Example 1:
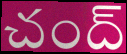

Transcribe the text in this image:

చంద్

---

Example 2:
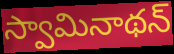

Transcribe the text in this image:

స్వామినాథన్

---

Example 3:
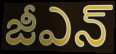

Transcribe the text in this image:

జీఎన్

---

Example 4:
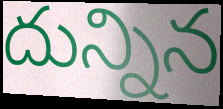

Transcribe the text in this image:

దున్నిన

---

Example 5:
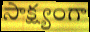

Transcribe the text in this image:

సాక్ష్యంగా